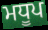
ਮਧੂਪ